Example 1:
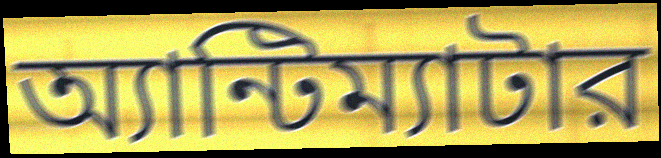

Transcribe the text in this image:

অ্যান্টিম্যাটার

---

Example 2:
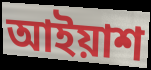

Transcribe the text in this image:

আইয়াশ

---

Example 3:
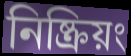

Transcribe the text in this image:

নিষ্ক্রিয়ং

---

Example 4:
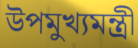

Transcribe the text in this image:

উপমুখ্যমন্ত্রী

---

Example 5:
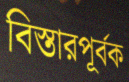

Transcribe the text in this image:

বিস্তারপূর্বক